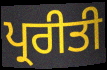
ਪ੍ਰਰੀਤੀ